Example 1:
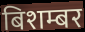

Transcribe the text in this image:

बिशम्बर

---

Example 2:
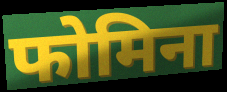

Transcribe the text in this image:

फोमिना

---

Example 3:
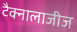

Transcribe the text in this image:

टैक्नालाजीज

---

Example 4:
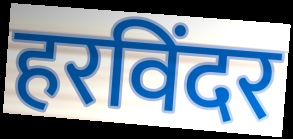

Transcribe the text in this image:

हरविंदर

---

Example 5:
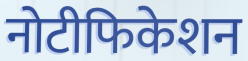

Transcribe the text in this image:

नोटीफिकेशन